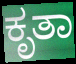
ಕೃತಾ